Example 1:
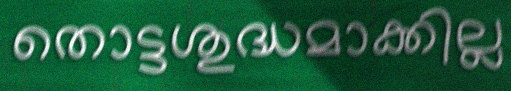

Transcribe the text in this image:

തൊട്ടശുദ്ധമാക്കില്ല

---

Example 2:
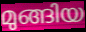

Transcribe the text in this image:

മുങ്ങിയ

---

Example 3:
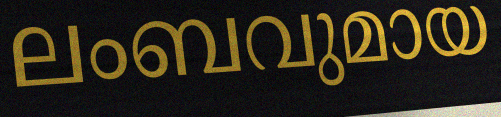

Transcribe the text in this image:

ലംബവുമായ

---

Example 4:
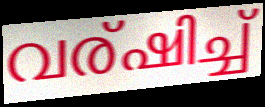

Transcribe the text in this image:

വര്ഷിച്ച്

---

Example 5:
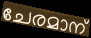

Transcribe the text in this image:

ചേരമാന്